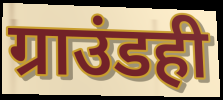
ग्राउंडही